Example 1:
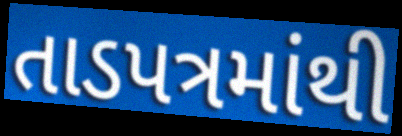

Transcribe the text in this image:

તાડપત્રમાંથી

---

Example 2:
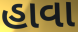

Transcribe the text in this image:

હાવા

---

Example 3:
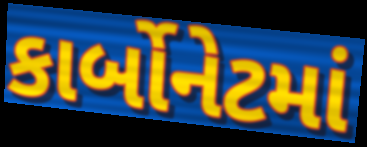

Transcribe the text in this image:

કાર્બોનેટમાં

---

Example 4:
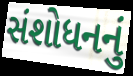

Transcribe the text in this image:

સંશોધનનું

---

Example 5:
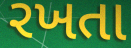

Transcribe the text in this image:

રખતા